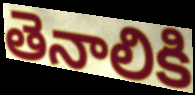
తెనాలికి